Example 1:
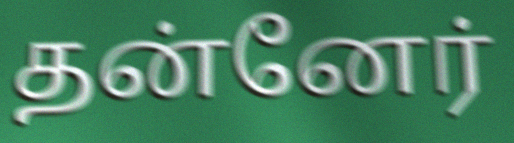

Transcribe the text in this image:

தன்னேர்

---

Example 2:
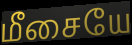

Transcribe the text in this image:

மீசையே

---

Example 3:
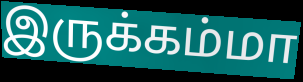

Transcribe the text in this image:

இருக்கம்மா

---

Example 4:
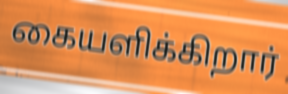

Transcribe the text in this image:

கையளிக்கிறார்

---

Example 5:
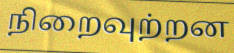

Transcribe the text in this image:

நிறைவுற்றன